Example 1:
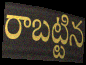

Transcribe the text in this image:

రాబట్టిన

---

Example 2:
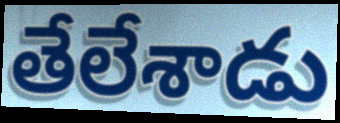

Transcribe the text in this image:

తేలేశాడు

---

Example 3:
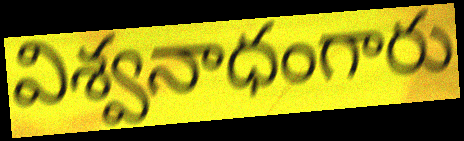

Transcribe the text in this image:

విశ్వనాధంగారు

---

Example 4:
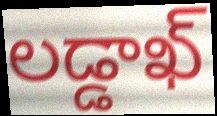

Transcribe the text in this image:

లడ్డాఖ్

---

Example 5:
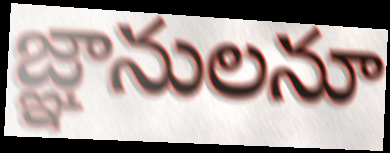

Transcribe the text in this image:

జ్ఞానులనూ